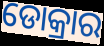
ଡୋକ୍ରାର